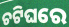
ଚଟିଘରେ